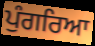
ਪੁੰਗਰਿਆ